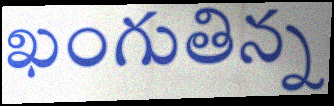
ఖంగుతిన్న